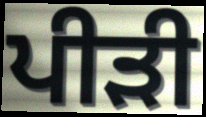
ਪੀੜੀ